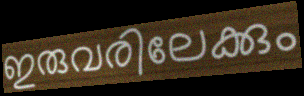
ഇരുവരിലേക്കും